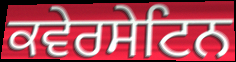
ਕਵੇਰਸੇਟਿਨ